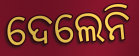
ଦେଲେନି